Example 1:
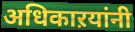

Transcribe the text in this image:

अधिकाऱयांनी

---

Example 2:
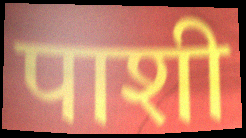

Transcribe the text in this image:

पाशी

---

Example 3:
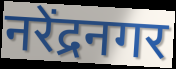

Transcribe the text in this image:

नरेंद्रनगर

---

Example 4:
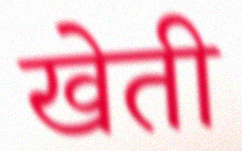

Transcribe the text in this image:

खेती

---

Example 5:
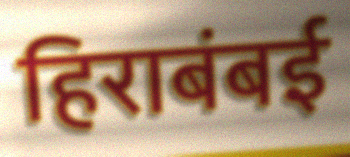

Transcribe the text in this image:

हिराबंबई